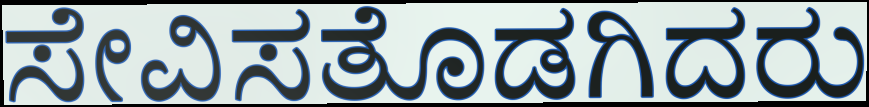
ಸೇವಿಸತೊಡಗಿದರು